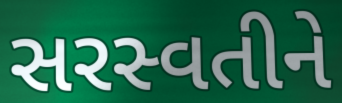
સરસ્વતીને